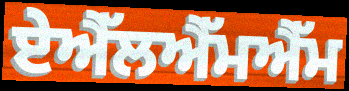
ਏਐੱਲਐੱਮਐੱਮ